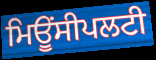
ਮਿਊਂਸੀਪਲਟੀ